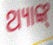
ଥ୍ୟାଙ୍କ୍